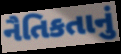
નૈતિકતાનું